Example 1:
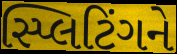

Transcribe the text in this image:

સ્પ્લિટિંગને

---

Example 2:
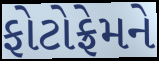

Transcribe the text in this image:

ફોટોફ્રેમને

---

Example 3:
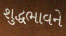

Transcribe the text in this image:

શુદ્ધભાવને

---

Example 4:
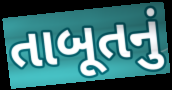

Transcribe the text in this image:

તાબૂતનું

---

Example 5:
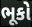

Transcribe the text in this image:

ભૂકો